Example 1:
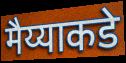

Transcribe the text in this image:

मैय्याकडे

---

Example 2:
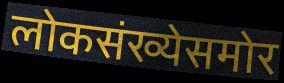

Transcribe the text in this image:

लोकसंख्येसमोर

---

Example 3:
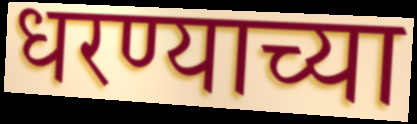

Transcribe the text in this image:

धरण्याच्या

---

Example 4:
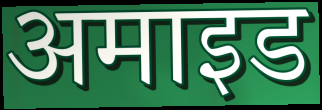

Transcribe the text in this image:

अमाइड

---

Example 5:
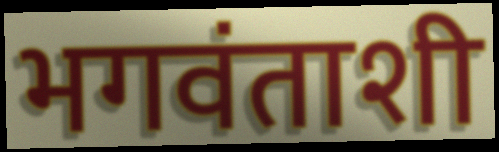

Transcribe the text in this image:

भगवंताशी